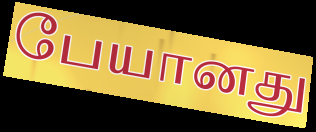
பேயானது